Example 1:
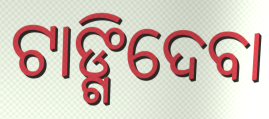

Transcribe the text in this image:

ଟାଙ୍ଗିଦେବା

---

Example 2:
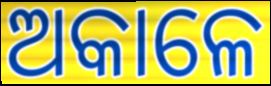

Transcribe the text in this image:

ଅକାଳେ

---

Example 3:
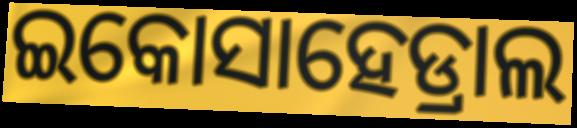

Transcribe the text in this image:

ଇକୋସାହେଡ୍ରାଲ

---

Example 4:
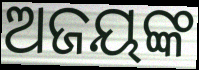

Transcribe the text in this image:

ଅଜୟଙ୍କ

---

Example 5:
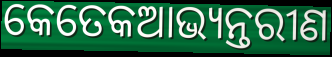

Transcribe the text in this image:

କେତେକଆଭ୍ୟନ୍ତରୀଣ